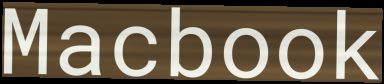
Macbook